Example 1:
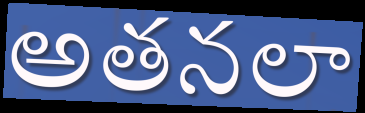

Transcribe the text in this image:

అతనలా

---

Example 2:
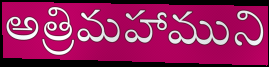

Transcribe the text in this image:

అత్రిమహాముని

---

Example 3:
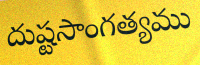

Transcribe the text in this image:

దుష్టసాంగత్యము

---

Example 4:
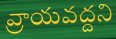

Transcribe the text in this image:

వ్రాయవద్దని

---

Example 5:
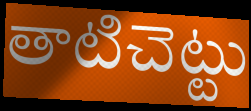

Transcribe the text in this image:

తాటిచెట్టు